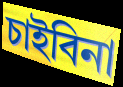
চাইবিনা